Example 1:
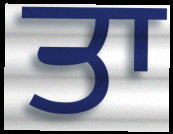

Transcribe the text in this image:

ਤਾ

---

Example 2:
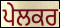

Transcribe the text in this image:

ਪੇਲਕਰ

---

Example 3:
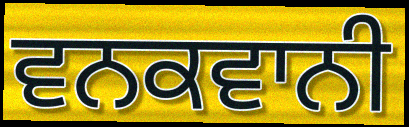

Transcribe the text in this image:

ਵਨਕਵਾਨੀ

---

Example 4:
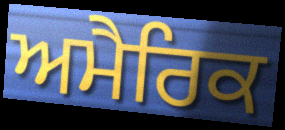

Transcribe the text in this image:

ਅਮੈਰਿਕ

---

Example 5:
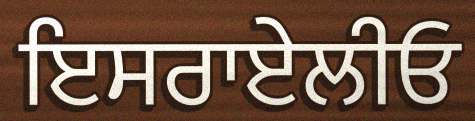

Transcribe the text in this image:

ਇਸਰਾਏਲੀਓ